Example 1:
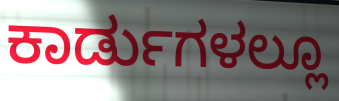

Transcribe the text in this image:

ಕಾರ್ಡುಗಳಲ್ಲೂ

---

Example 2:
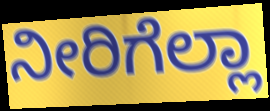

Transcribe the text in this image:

ನೀರಿಗೆಲ್ಲಾ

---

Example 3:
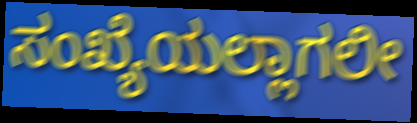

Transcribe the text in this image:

ಸಂಖ್ಯೆಯಲ್ಲಾಗಲೀ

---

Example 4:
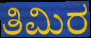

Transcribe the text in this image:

ತಿಮಿರ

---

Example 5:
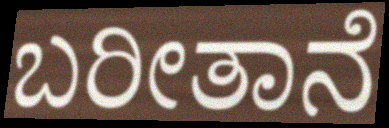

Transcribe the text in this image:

ಬರೀತಾನೆ